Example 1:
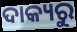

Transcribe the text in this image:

ଦାକ୍ୟରୁ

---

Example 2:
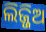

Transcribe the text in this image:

ଲିଜ୍ଜିଅ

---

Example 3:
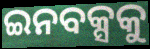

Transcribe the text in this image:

ଇନବକ୍ସକୁ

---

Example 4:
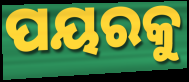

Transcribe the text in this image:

ପୟରକୁ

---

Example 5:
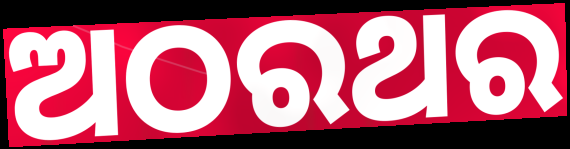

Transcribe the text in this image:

ଅଠରଥର